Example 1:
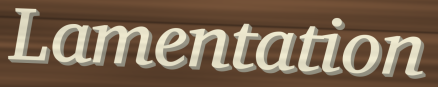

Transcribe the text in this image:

Lamentation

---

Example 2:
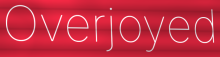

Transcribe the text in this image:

Overjoyed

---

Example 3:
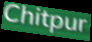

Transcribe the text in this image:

Chitpur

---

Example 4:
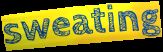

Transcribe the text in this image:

sweating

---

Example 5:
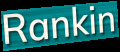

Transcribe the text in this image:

Rankin